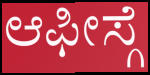
ಆಫೀಸ್ಗೆ